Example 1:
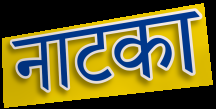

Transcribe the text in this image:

नाटका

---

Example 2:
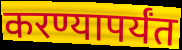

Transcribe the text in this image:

करण्यापर्यंत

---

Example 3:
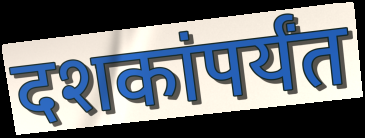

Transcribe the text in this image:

दशकांपर्यंत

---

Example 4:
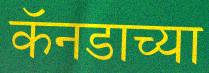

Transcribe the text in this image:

कॅनडाच्या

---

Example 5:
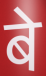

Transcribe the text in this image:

बे